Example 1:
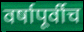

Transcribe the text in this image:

वर्षापूर्वीच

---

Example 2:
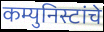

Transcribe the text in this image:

कम्युनिस्टांचे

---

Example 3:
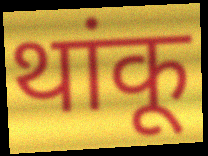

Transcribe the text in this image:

थांकू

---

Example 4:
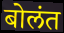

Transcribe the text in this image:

बोलंत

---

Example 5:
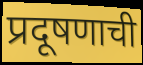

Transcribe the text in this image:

प्रदूषणाची